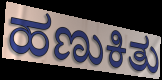
ಹಣುಕಿತು